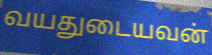
வயதுடையவன்